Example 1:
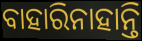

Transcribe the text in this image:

ବାହାରିନାହାନ୍ତି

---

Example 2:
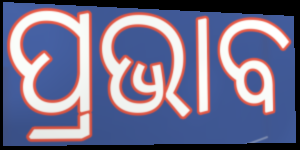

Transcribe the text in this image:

ପ୍ରଭାବ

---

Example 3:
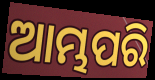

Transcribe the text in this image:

ଆମ୍ଭପରି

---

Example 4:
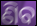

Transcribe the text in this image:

ଣିବ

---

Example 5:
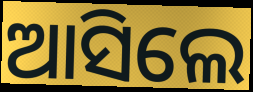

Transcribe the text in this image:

ଆସିଲେ